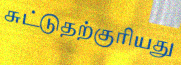
சுட்டுதற்குரியது